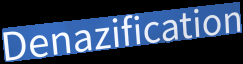
Denazification